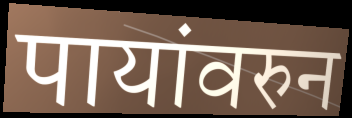
पायांवरुन